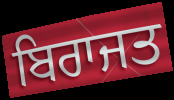
ਬਿਰਾਜਤ